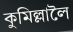
কুমিল্লালৈ